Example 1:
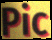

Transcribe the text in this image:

Pic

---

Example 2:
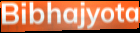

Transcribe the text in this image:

Bibhajyota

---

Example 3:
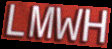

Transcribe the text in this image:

LMWH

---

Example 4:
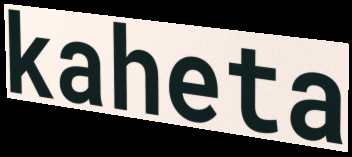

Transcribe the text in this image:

kaheta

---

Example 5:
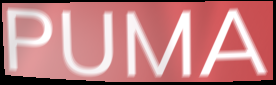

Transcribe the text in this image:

PUMA